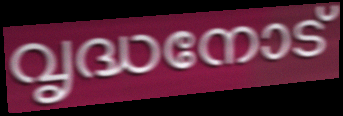
വൃദ്ധനോട്